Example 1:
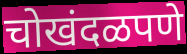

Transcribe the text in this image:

चोखंदळपणे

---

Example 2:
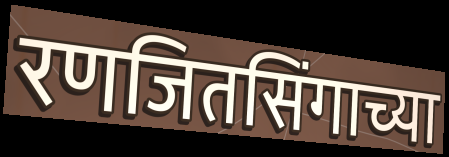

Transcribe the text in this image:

रणजितसिंगाच्या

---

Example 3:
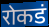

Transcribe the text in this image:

रोकडं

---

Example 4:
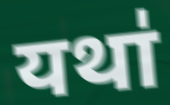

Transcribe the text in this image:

यथा॑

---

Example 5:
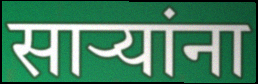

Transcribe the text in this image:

सार्‍यांना